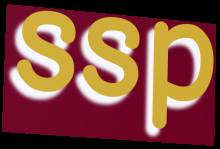
ssp